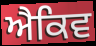
ਐਕਿਵ